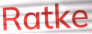
Ratke